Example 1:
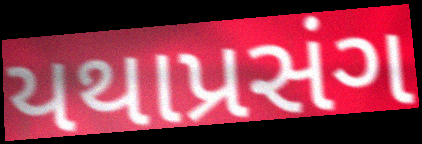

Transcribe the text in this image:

યથાપ્રસંગ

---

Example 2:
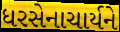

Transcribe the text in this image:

ધરસેનાચાર્યને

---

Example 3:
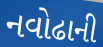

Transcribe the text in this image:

નવોઢાની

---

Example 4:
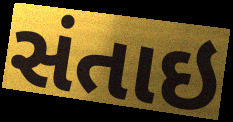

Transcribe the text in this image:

સંતાઇ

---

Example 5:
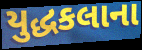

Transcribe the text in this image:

યુદ્ધકલાના